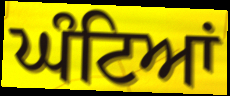
ਘੰਟਿਆਂ